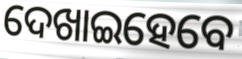
ଦେଖାଇହେବେ